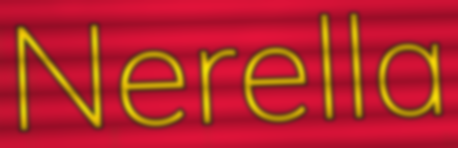
Nerella